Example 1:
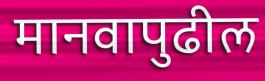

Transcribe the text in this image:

मानवापुढील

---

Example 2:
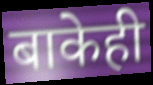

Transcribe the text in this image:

बाकेही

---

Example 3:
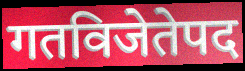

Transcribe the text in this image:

गतविजेतेपद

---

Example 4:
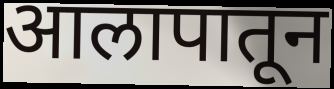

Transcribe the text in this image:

आलापातून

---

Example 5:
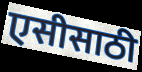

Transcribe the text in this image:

एसीसाठी